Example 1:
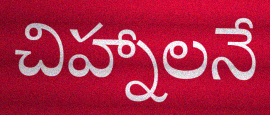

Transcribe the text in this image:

చిహ్నాలనే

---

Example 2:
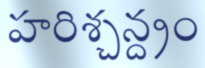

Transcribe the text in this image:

హరిశ్చన్ద్రం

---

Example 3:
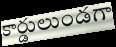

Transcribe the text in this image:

కార్డులుండగా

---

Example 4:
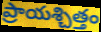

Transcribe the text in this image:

ప్రాయశ్చిత్తం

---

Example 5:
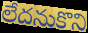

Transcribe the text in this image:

లేదనుకొని